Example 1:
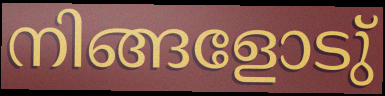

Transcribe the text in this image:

നിങ്ങളോടു്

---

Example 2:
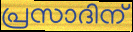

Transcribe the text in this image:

പ്രസാദിന്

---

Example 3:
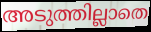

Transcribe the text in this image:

അടുത്തില്ലാതെ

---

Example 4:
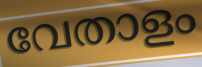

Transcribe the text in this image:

വേതാളം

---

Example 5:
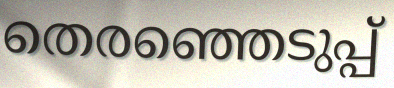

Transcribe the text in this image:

തെരഞ്ഞെടുപ്പ്